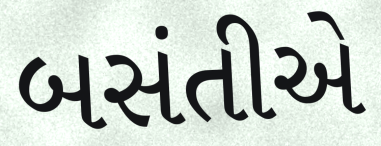
બસંતીએ